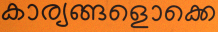
കാര്യങ്ങളൊക്കെ